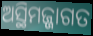
ଅସ୍ଥିମଜ୍ଜାଗତ